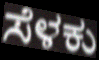
ಸೆಳಕು